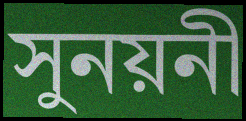
সুনয়নী